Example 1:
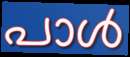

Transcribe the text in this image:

പാൾ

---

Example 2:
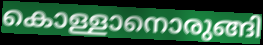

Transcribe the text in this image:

കൊള്ളാനൊരുങ്ങി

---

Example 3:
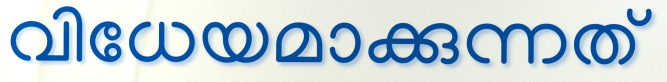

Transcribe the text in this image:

വിധേയമാക്കുന്നത്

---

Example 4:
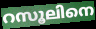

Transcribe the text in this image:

റസൂലിനെ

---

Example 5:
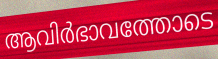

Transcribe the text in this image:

ആവിർഭാവത്തോടെ